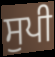
ਸੁਪੀ